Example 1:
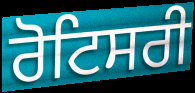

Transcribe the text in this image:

ਰੋਟਿਸਰੀ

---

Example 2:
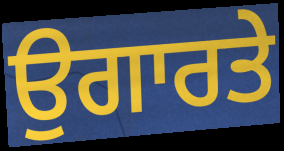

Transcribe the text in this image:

ਉਗਾਰਤੇ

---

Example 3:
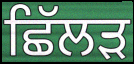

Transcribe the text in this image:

ਛਿੱਲੜ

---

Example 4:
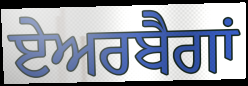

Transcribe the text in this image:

ਏਅਰਬੈਗਾਂ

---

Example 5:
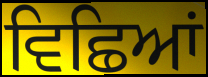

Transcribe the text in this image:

ਵਿਛਿਆਂ